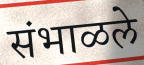
संभाळले